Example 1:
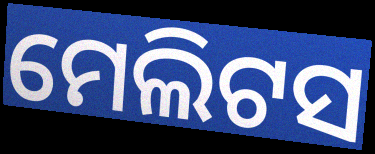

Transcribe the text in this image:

ମେଲିଟସ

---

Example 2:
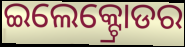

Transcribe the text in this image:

ଇଲେକ୍ଟ୍ରୋଡର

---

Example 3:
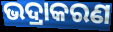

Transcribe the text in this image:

ଭଦ୍ରାକରଣ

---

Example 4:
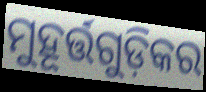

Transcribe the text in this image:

ମୁହୂର୍ତ୍ତଗୁଡ଼ିକର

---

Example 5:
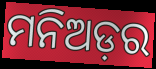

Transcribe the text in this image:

ମନିଅଡ଼ର